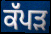
ਕੱਪੜ